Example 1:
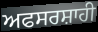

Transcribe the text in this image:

ਅਫਸਰਸ਼ਾਹੀ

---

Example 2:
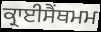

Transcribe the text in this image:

ਕ੍ਰਾਈਸੈਂਥਮਮ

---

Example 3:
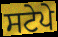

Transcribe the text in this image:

ਸਟੇਪੇ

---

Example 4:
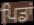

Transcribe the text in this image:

ਪਿਡਾਂ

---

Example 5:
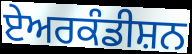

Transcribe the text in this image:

ਏਅਰਕੰਡੀਸ਼ਨ